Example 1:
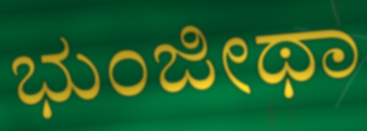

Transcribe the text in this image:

ಭುಂಜೀಥಾ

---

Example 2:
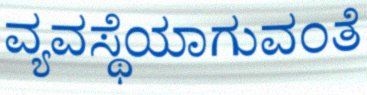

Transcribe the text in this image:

ವ್ಯವಸ್ಥೆಯಾಗುವಂತೆ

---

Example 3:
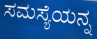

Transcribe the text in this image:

ಸಮಸ್ಯೆಯನ್ನ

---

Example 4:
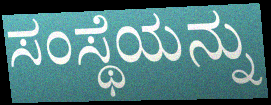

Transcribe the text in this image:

ಸಂಸ್ಥೆಯನ್ನು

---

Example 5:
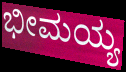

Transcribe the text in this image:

ಭೀಮಯ್ಯ